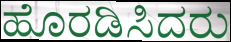
ಹೊರಡಿಸಿದರು